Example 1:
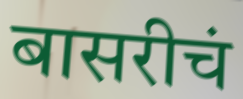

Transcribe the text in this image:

बासरीचं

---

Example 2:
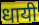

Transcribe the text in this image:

धायी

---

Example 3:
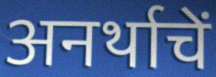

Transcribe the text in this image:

अनर्थाचें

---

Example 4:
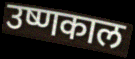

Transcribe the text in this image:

उष्णकाल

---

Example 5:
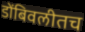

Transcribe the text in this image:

डोंबिवलीतच